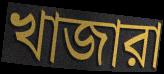
খাজারা